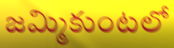
జమ్మికుంటలో